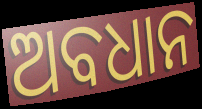
ଅବଧାନ